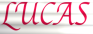
LUCAS